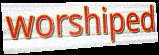
worshiped